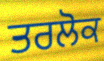
ਤਰਲੋਕ